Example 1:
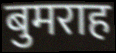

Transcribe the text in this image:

बुमराह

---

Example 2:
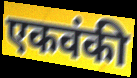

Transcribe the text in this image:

एकवंकी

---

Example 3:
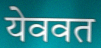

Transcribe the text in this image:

येववत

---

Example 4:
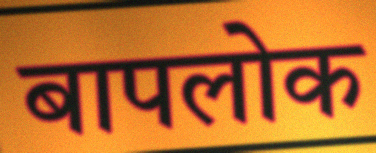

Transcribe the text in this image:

बापलोक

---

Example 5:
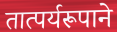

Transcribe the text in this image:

तात्पर्यरूपाने